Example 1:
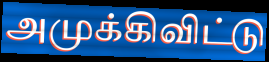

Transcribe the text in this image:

அமுக்கிவிட்டு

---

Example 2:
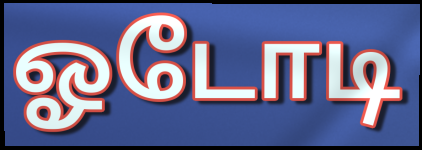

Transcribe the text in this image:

ஓடோடி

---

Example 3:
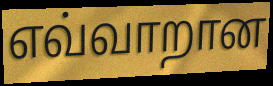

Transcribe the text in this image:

எவ்வாறான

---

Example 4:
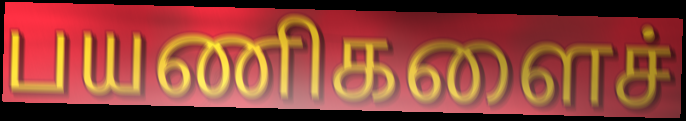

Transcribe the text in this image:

பயணிகளைச்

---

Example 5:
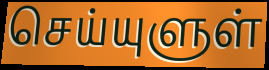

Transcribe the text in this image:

செய்யுளுள்